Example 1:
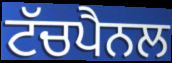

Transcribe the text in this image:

ਟੱਚਪੈਨਲ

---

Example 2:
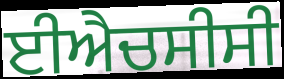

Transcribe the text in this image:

ਈਐਚਸੀਸੀ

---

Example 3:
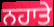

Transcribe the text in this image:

ਨਹਾਤੇ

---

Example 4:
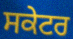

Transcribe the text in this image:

ਸਕੇਟਰ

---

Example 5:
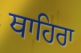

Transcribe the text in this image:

ਥਾਹਿਰਾ